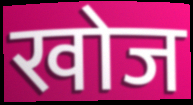
खोज